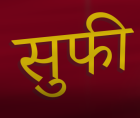
सुफी